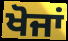
ਖੋਜਾਂ